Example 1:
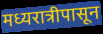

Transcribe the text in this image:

मध्यरात्रीपासून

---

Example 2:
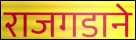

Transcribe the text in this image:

राजगडाने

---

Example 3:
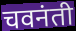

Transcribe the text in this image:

चवनंती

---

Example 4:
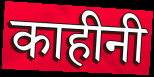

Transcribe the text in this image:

काहीनी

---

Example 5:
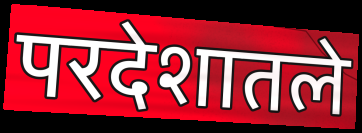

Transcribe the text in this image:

परदेशातले